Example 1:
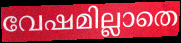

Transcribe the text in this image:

വേഷമില്ലാതെ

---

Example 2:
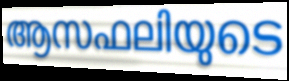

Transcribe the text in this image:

ആസഫലിയുടെ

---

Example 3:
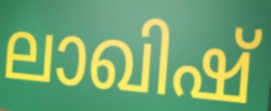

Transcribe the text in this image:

ലാഖിഷ്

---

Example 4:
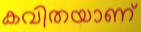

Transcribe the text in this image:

കവിതയാണ്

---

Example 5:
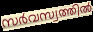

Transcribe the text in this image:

സർവസ്വത്തിൽ